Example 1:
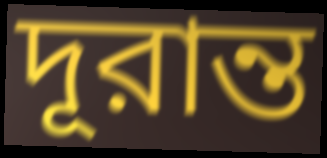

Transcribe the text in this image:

দূরান্ত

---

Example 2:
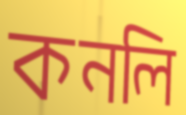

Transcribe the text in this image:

কনলি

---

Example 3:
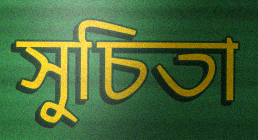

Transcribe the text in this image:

সুচিতা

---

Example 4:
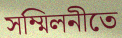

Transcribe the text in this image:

সম্মিলনীতে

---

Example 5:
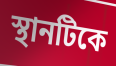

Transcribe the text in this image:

স্থানটিকে